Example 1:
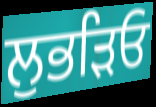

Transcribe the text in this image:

ਲੁਭੜਿਓ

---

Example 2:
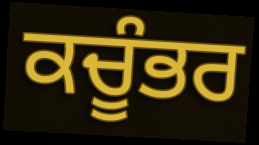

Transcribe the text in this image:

ਕਚੂੰਭਰ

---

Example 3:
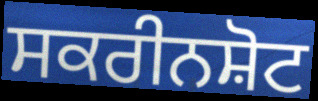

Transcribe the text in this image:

ਸਕਰੀਨਸ਼ੋਟ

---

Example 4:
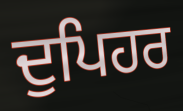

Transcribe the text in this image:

ਦੁਪਿਹਰ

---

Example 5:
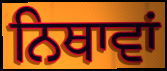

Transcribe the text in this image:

ਨਿਥਾਵਾਂ